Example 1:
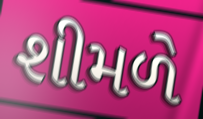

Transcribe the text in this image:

શીમળે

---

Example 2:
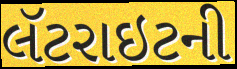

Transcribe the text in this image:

લૅટરાઇટની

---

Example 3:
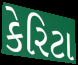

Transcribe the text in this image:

કેરિટા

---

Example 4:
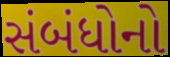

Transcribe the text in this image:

સંબંધોનો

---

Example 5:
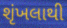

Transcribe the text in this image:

શૃંખલાથી